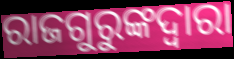
ରାଜଗୁରୁଙ୍କଦ୍ୱାରା